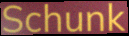
Schunk